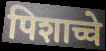
पिशाच्चे